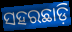
ସହରଛାଡ଼ି